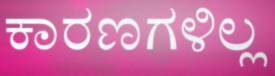
ಕಾರಣಗಳಿಲ್ಲ